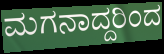
ಮಗನಾದ್ದರಿಂದ